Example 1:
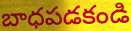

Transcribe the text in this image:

బాధపడకండి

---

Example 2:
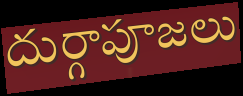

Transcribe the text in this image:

దుర్గాపూజలు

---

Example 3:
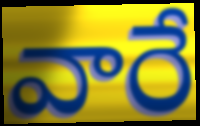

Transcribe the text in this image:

వారే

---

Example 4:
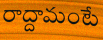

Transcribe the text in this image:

రాద్దామంటే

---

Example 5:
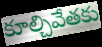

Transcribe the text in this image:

కూల్చివేతకు